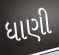
ધાણી